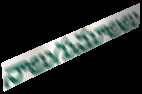
నాలుగుమూలలు